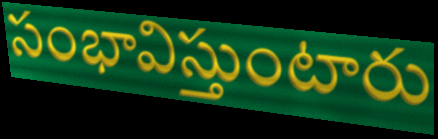
సంభావిస్తుంటారు